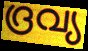
ദ്രവ്യ